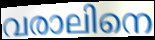
വരാലിനെ